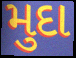
મુદા